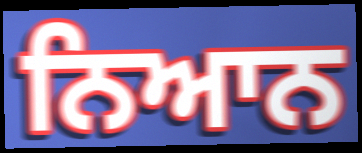
ਨਿਆਨ